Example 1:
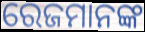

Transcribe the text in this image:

ରେଜମାନଙ୍କ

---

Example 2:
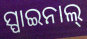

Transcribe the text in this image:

ସ୍ପାଇନାଲ୍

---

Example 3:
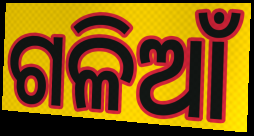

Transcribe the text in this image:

ଗଳିଆଁ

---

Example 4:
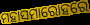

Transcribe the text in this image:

ମହାସମାରୋହରେ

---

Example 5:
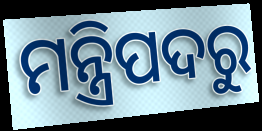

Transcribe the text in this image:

ମନ୍ତ୍ରିପଦରୁ